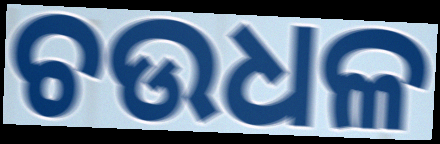
ଚଉଧଳ